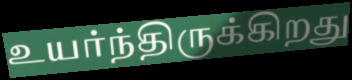
உயர்ந்திருக்கிறது